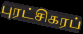
புரட்சிகரப்